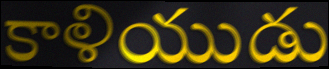
కాళియుడు